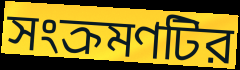
সংক্রমণটির